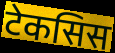
टेकसिस